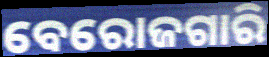
ବେରୋଜଗାରି